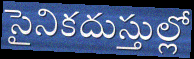
సైనికదుస్తుల్లో